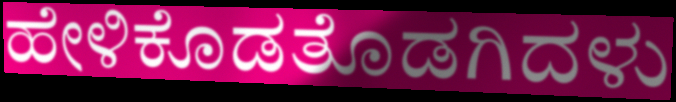
ಹೇಳಿಕೊಡತೊಡಗಿದಳು